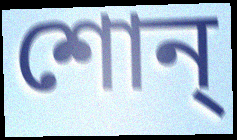
শোন্